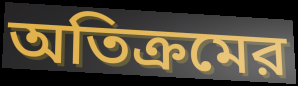
অতিক্রমের